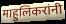
माहुलिकरांनी